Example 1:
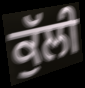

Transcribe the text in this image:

ਕੁੱਲੀ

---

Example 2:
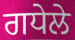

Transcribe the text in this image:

ਗਧੇਲੇ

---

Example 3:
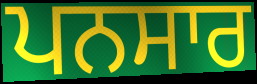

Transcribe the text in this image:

ਪਨਸਾਰ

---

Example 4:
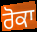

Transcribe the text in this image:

ਰੋਕਾ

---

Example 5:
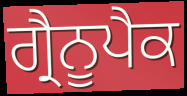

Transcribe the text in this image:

ਗ੍ਰੈਨੂਪੈਕ